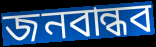
জনবান্ধব